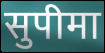
सुपीमा